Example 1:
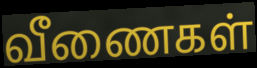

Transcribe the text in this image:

வீணைகள்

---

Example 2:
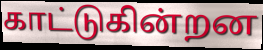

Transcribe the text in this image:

காட்டுகின்றன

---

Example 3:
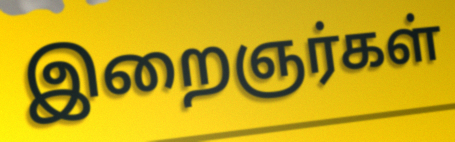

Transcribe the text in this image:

இறைஞர்கள்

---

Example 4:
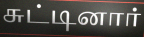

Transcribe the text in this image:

சுட்டினார்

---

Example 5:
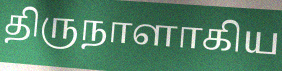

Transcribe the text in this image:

திருநாளாகிய